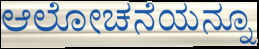
ಆಲೋಚನೆಯನ್ನೂ